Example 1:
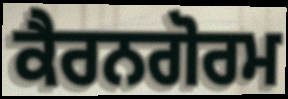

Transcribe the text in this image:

ਕੈਰਨਗੋਰਮ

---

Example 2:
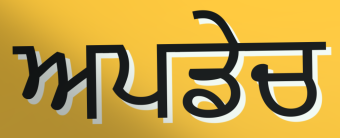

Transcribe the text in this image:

ਅਪਡੇਚ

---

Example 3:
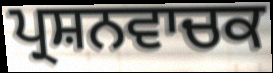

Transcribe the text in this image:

ਪ੍ਰਸ਼ਨਵਾਚਕ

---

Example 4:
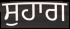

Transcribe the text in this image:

ਸੁਹਾਗ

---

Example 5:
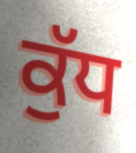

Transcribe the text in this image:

ਕੁੱਧ